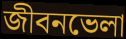
জীবনভেলা